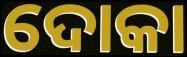
ଦୋକା